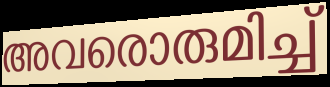
അവരൊരുമിച്ച്